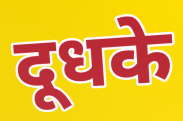
दूधके